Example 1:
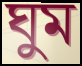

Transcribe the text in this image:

ঘুম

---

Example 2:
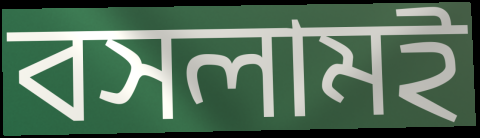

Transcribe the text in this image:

বসলামই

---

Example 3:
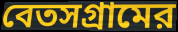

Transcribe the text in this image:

বেতসগ্রামের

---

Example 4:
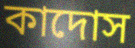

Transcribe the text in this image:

কাদোস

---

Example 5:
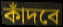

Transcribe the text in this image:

কাঁদবে